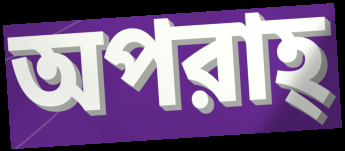
অপরাহ্